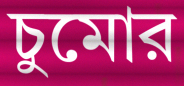
চুমোর